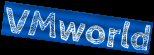
VMworld